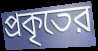
প্রকৃতের